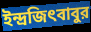
ইন্দ্রজিৎবাবুর